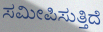
ಸಮೀಪಿಸುತ್ತಿದೆ